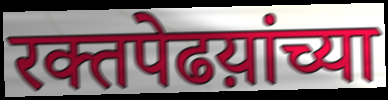
रक्तपेढय़ांच्या